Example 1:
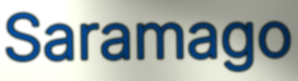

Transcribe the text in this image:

Saramago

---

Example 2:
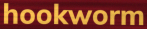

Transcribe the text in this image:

hookworm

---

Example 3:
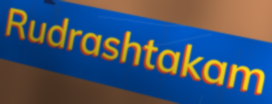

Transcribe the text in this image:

Rudrashtakam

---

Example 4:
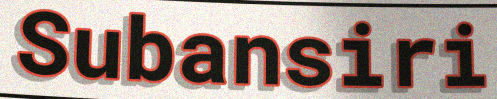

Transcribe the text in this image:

Subansiri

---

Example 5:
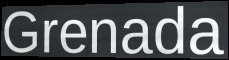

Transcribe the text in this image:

Grenada